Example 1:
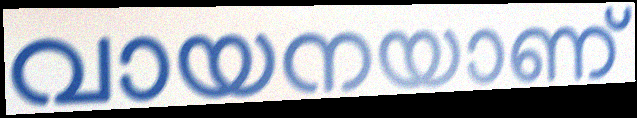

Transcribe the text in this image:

വായനയാണ്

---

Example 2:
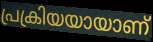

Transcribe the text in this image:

പ്രക്രിയയായാണ്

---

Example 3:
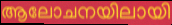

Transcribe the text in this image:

ആലോചനയിലായി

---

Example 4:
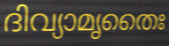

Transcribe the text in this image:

ദിവ്യാമൃതൈഃ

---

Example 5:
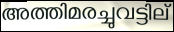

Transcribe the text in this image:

അത്തിമരച്ചുവട്ടില്